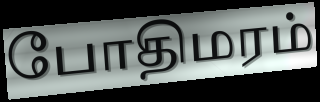
போதிமரம்